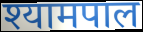
श्यामपाल